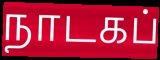
நாடகப்